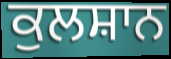
ਕੁਲਸ਼ਾਨ